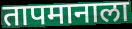
तापमानाला